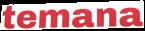
temana